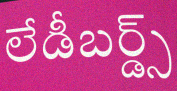
లేడీబర్డ్స్